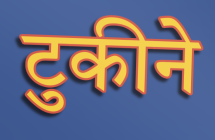
टुकीने